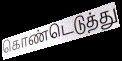
கொண்டெடுத்து